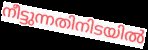
നീട്ടുന്നതിനിടയിൽ